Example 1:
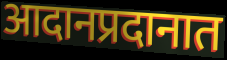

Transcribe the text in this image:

आदानप्रदानात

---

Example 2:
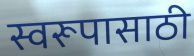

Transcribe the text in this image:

स्वरूपासाठी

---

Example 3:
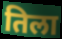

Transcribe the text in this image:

तिला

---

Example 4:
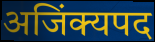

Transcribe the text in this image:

अजिंक्यपद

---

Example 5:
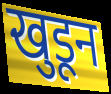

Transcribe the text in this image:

खुडून